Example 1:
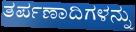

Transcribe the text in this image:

ತರ್ಪಣಾದಿಗಳನ್ನು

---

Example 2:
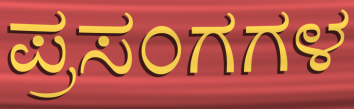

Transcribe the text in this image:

ಪ್ರಸಂಗಗಳ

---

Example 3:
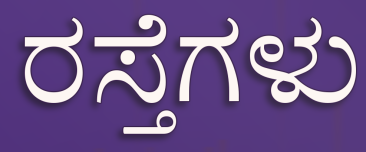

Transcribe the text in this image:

ರಸ್ತೆಗಳು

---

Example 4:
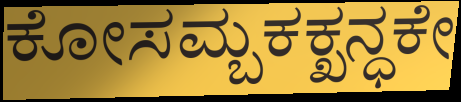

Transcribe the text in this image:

ಕೋಸಮ್ಬಕಕ್ಖನ್ಧಕೇ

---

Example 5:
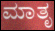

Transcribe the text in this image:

ಮಾತೃ